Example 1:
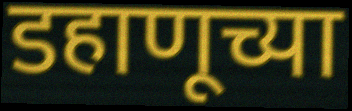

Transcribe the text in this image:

डहाणूच्या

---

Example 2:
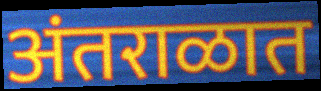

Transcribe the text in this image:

अंतराळात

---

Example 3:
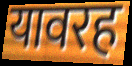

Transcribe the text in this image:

यावरह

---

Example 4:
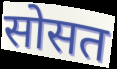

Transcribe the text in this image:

सोसत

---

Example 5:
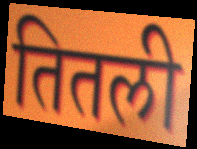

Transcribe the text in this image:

तितली